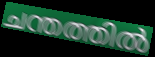
ചന്തത്തിൽ